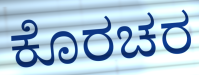
ಕೊರಚರ